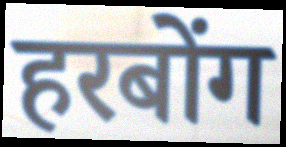
हरबोंग